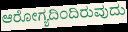
ಆರೋಗ್ಯದಿಂದಿರುವುದು